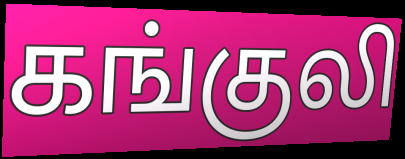
கங்குலி